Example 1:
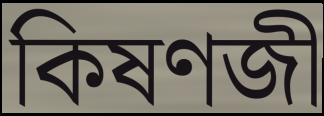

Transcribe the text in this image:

কিষণজী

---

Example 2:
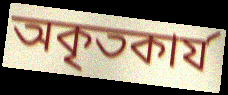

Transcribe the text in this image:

অকৃতকার্য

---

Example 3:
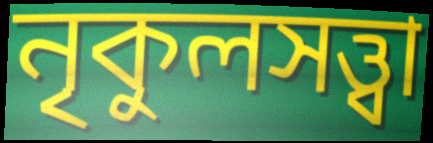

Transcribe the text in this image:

নৃকুলসত্ত্বা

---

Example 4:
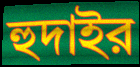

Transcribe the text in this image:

হুদাইর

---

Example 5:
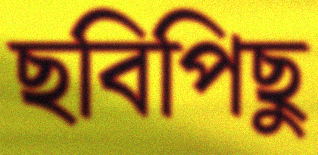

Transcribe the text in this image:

ছবিপিছু